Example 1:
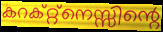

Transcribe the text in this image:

കറക്റ്റ്നെസ്സിന്റെ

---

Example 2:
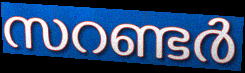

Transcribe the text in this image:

സറണ്ടർ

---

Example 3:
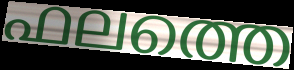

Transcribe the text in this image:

ഫലത്തെ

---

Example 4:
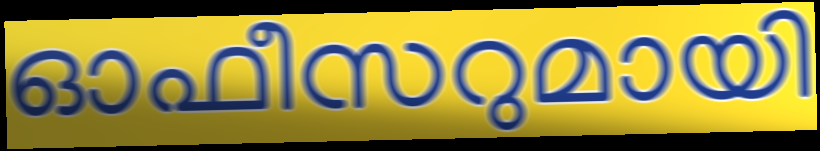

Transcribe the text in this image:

ഓഫീസറുമായി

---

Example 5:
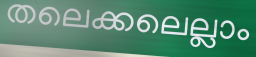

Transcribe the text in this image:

തലെക്കലെല്ലാം